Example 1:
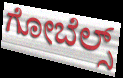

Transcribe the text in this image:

ಗೋಬೆಲ್ಸ್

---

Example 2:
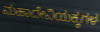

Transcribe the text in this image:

ಮಹಾದೇವಿಯಕ್ಕಗಳ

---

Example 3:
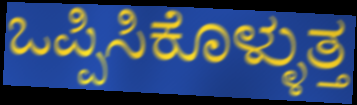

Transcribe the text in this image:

ಒಪ್ಪಿಸಿಕೊಳ್ಳುತ್ತ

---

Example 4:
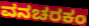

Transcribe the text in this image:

ವನಚರಕಂ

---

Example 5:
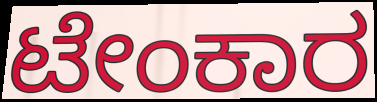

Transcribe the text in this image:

ಟೇಂಕಾರ